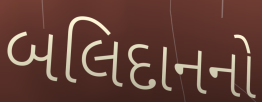
બલિદાનનો